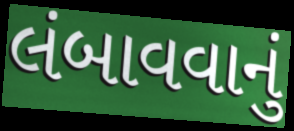
લંબાવવાનું